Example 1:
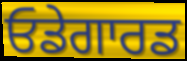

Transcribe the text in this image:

ਓਡੇਗਾਰਡ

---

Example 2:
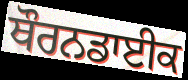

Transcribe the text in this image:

ਥੌਰਨਡਾਈਕ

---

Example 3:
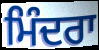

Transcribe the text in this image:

ਮਿੰਦਰਾ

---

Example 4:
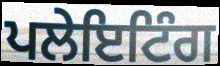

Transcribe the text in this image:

ਪਲੇਇਟਿੰਗ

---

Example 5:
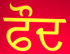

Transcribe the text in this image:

ਫੌਦ